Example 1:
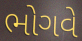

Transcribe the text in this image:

ભોગવે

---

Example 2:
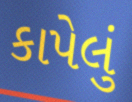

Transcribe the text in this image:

કાપેલું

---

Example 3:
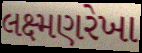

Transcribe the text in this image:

લક્ષ્મણરેખા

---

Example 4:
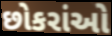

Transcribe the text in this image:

છોકરાંઓ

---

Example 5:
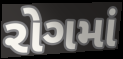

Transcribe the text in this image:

રોગમાં